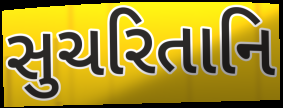
સુચરિતાનિ